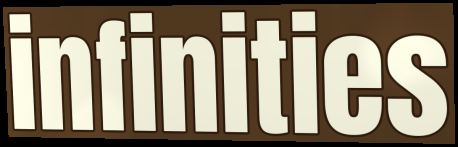
infinities